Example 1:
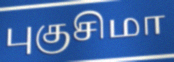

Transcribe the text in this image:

புகுசிமா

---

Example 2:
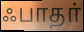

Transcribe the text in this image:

ஃபாதர்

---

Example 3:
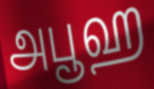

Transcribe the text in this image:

அபூஹ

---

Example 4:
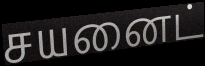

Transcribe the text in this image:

சயனைட்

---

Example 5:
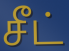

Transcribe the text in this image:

சீட்